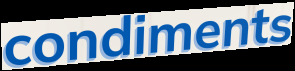
condiments